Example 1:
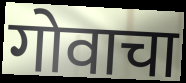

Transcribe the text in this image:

गोवाचा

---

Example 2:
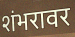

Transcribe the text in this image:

शंभरावर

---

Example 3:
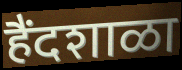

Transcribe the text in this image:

हैंदशाळा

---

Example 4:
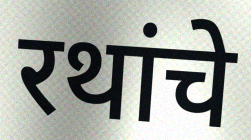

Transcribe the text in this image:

रथांचे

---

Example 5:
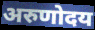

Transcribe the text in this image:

अरुणोदय